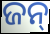
ଜନ୍